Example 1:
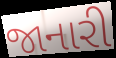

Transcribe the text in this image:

જાનારી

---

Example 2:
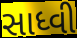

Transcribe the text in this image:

સાધ્વી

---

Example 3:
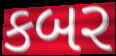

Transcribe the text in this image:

કબર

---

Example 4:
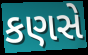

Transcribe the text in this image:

કણસે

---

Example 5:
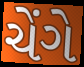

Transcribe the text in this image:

ચેંગે